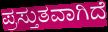
ಪ್ರಸ್ತುತವಾಗಿದೆ